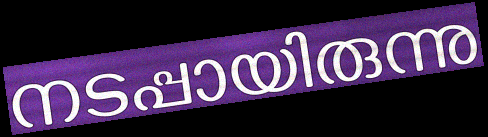
നടപ്പായിരുന്നു